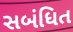
સબંધિત